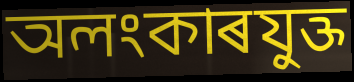
অলংকাৰযুক্ত